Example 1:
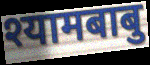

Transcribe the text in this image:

श्यामबाबु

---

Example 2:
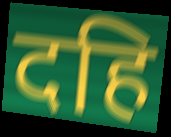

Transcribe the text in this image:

दहि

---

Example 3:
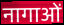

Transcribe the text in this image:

नागाओं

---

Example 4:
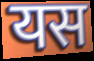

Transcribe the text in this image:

यस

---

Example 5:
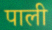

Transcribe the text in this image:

पाली